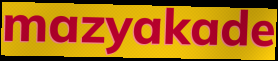
mazyakade